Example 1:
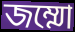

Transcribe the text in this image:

জম্মো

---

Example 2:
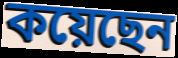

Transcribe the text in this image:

কয়েছেন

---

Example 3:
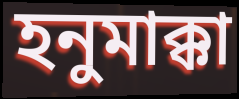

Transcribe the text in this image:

হনুমাক্কা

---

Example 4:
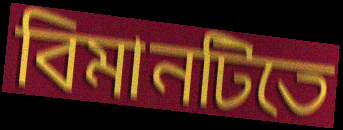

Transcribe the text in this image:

বিমানটিতে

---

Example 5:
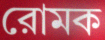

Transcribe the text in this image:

রোমক